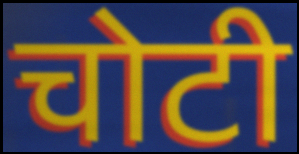
चोटी